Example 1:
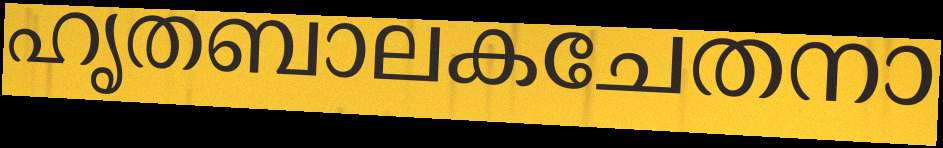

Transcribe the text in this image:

ഹൃതബാലകചേതനാ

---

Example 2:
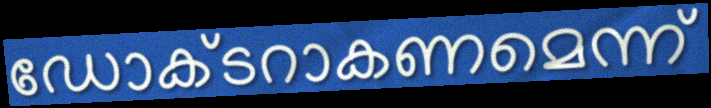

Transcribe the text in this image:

ഡോക്ടറാകണമെന്ന്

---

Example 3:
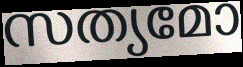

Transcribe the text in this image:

സത്യമോ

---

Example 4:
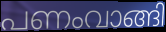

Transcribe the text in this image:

പണംവാങ്ങി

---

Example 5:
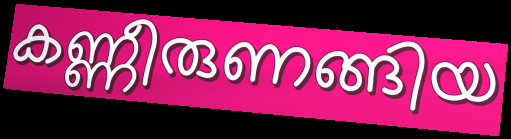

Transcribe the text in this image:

കണ്ണീരുണങ്ങിയ